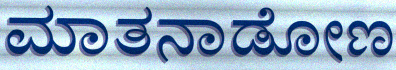
ಮಾತನಾಡೋಣ